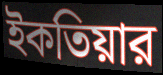
ইকতিয়ার